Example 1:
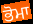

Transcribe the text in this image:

ਭੋਮਾ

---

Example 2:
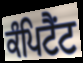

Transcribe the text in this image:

ਕੰਪਿਟੈਂਟ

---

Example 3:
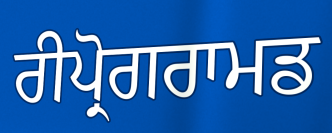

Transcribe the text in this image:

ਰੀਪ੍ਰੋਗਰਾਮਡ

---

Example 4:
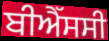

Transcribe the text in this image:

ਬੀਐੱਸਸੀ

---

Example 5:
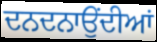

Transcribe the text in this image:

ਦਨਦਨਾਉਂਦੀਆਂ